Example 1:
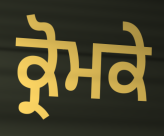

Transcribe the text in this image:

ਕ੍ਰੋਮਕੇ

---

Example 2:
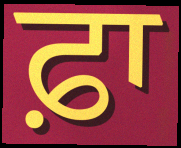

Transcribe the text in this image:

ਫ਼ਾ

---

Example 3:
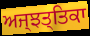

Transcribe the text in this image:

ਅਜ੍ਝਤ੍ਤਿਕਾ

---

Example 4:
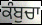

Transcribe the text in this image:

ਕੰਬੁਚਾ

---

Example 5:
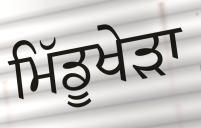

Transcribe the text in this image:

ਮਿੱਡੂਖੇੜਾ